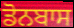
ਡੋਨਬਾਸ